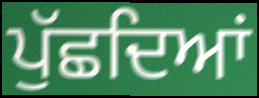
ਪੁੱਛਦਿਆਂ